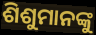
ଶିଶୁମାନଙ୍କୁ